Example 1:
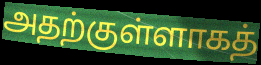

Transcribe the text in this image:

அதற்குள்ளாகத்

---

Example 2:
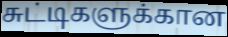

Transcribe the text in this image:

சுட்டிகளுக்கான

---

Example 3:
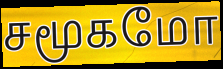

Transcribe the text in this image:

சமூகமோ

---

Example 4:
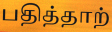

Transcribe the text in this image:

பதித்தாற்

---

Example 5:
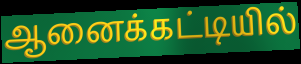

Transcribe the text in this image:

ஆனைக்கட்டியில்